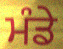
ਮੰਡੇ